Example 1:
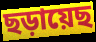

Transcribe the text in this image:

ছড়ায়েছ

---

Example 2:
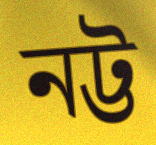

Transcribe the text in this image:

নট্ট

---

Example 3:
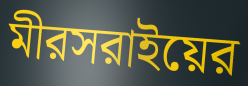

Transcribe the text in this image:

মীরসরাইয়ের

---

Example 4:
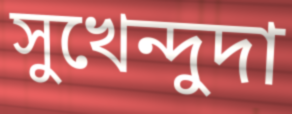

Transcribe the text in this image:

সুখেন্দুদা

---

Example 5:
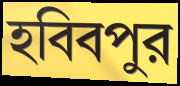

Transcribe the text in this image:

হবিবপুর